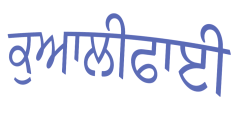
ਕੁਆਲੀਫਾਈ